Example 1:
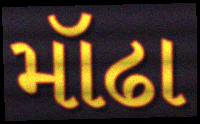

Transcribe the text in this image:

મૉઢા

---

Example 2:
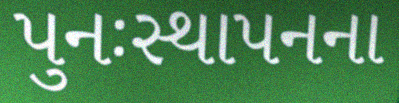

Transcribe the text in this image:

પુનઃસ્થાપનના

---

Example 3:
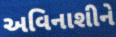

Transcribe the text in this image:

અવિનાશીને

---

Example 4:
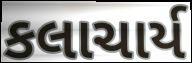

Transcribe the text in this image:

કલાચાર્ય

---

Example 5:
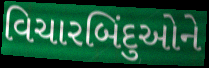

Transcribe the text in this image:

વિચારબિંદુઓને